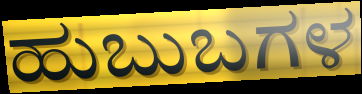
ಹುಬುಬಗಳ